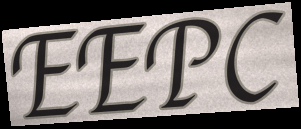
EEPC